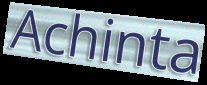
Achinta